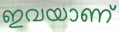
ഇവയാണ്